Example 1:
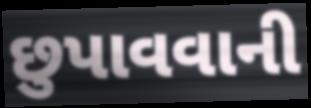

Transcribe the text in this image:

છુપાવવાની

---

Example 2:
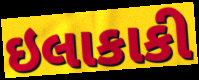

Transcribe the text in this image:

ઇલાકાકી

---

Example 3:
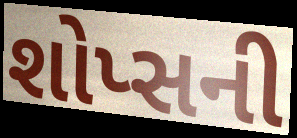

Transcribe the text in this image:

શોપ્સની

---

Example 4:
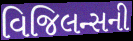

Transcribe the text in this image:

વિજિલન્સની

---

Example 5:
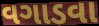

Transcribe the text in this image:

વગાડવા